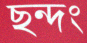
ছন্দং